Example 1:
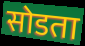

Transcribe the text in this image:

सोडता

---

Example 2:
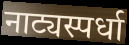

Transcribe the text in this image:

नाट्यस्पर्धा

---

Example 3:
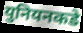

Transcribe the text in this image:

युनियनकडे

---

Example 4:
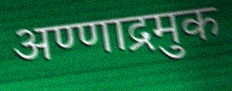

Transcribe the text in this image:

अण्णाद्रमुक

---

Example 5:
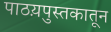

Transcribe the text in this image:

पाठय़पुस्तकातून